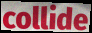
collide